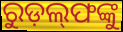
ରୁଡ଼ଲ୍‍ଫଙ୍କୁ